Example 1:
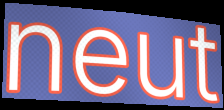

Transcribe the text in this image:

neut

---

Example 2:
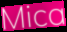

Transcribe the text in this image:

Mica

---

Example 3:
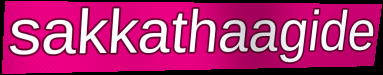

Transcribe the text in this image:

sakkathaagide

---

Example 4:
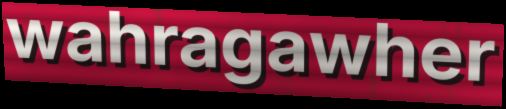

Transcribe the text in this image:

wahragawher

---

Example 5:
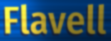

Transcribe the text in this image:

Flavell